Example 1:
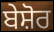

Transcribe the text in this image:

ਬੇਸ਼ੋਰ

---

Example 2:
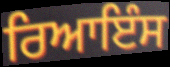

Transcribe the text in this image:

ਰਿਆਇੰਸ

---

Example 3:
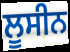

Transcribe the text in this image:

ਲੂਸੀਨ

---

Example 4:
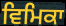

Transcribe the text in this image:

ਵਿਮਿਕਾ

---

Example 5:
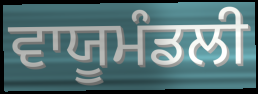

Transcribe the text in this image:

ਵਾਯੂਮੰਡਲੀ